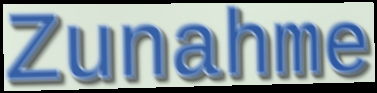
Zunahme